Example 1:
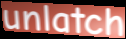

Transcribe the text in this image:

unlatch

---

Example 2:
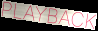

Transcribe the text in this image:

PLAYBACK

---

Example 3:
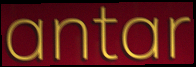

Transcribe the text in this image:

antar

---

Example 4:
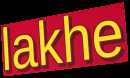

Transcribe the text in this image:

lakhe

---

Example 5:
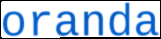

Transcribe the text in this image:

oranda